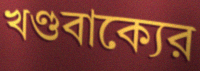
খণ্ডবাক্যের